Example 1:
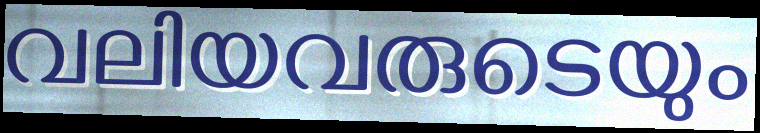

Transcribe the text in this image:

വലിയവരുടെയും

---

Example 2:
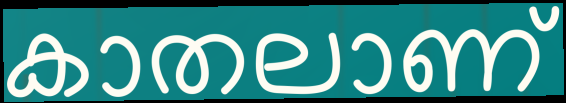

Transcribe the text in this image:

കാതലാണ്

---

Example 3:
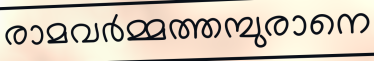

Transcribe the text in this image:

രാമവർമ്മത്തമ്പുരാനെ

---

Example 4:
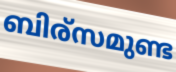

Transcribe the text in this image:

ബിര്സമുണ്ട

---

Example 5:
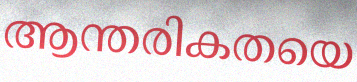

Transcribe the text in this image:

ആന്തരികതയെ